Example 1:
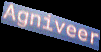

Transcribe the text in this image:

Agniveer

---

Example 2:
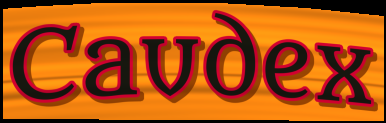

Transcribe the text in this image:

Caudex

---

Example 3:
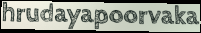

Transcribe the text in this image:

hrudayapoorvaka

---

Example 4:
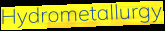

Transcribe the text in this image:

Hydrometallurgy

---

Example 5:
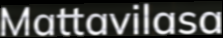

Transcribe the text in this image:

Mattavilasa